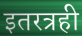
इतरत्रही